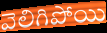
వెలిగిపోయి